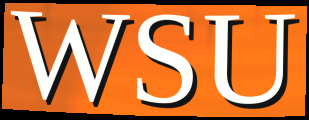
WSU